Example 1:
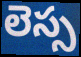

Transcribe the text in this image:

లెస్స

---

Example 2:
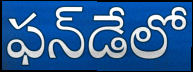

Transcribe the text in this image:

ఫన్‌డేలో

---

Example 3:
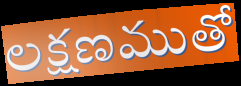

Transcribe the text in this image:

లక్షణముతో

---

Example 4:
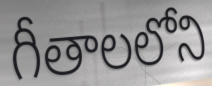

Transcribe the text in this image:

గీతాలలోని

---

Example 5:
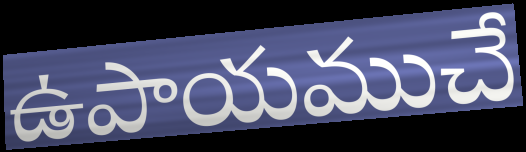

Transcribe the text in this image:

ఉపాయముచే